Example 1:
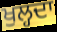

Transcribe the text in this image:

ਖੁਲ੍ਹਦਾ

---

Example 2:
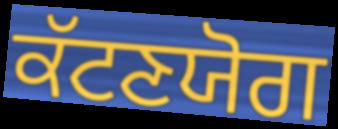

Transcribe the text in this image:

ਕੱਟਣਯੋਗ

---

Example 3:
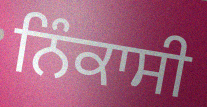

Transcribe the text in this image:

ਨਿੰਕਾਸੀ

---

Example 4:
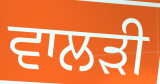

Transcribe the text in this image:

ਵਾਲੜੀ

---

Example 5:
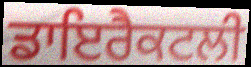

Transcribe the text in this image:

ਡਾਇਰੈਕਟਲੀ